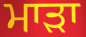
ਮਾਡ਼ਾ